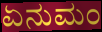
ಏನುಮಂ